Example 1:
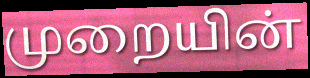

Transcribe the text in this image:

முறையின்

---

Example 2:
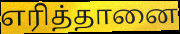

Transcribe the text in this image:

எரித்தானை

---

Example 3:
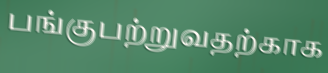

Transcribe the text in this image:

பங்குபற்றுவதற்காக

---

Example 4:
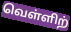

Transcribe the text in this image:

வெள்ளிற்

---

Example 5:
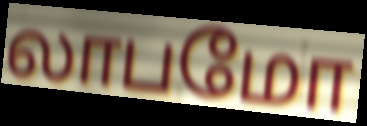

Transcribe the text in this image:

லாபமோ